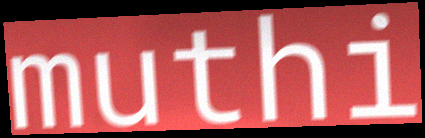
muthi